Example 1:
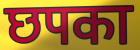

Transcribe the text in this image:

छपका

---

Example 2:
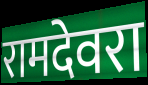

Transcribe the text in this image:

रामदेवरा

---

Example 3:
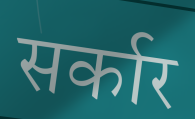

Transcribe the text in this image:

सर्कार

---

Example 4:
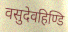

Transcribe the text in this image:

वसुदेवहिण्डि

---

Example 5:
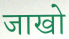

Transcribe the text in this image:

जाखो